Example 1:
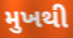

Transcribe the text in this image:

મુખથી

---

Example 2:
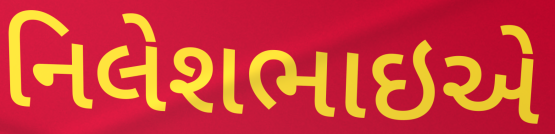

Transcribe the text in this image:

નિલેશભાઇએ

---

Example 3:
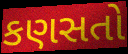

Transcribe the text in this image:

કણસતો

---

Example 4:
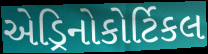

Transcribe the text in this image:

એડ્રિનોકોર્ટિકલ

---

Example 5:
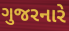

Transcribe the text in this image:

ગુજરનારે